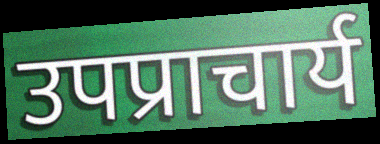
उपप्राचार्य